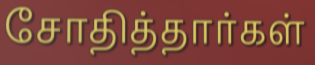
சோதித்தார்கள்